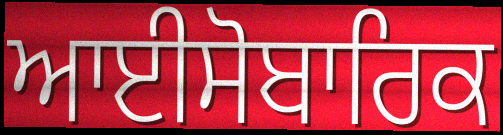
ਆਈਸੋਬਾਰਿਕ